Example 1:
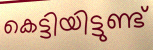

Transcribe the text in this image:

കെട്ടിയിട്ടുണ്ട്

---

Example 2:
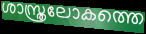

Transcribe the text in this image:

ശാസ്ത്രലോകത്തെ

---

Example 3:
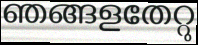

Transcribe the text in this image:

ഞങ്ങളതേറ്റു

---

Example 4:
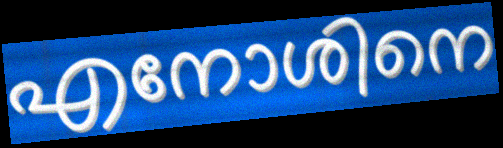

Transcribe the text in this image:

എനോശിനെ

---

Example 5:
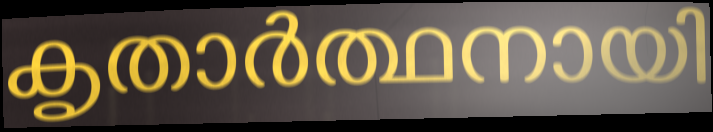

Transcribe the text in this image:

കൃതാർത്ഥനായി